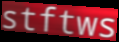
stftws